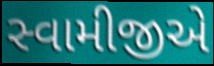
સ્વામીજીએ